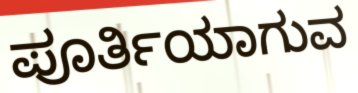
ಪೂರ್ತಿಯಾಗುವ